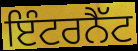
ਇੰਟਰਨੈੱਟ